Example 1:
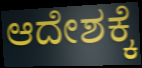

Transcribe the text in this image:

ಆದೇಶಕ್ಕೆ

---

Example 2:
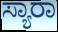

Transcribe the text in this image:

ಸ್ಯಾರಾ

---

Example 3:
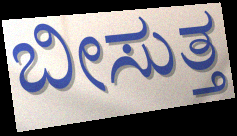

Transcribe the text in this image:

ಬೀಸುತ್ತ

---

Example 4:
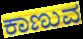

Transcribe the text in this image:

ಕಾಣುವ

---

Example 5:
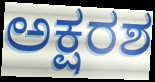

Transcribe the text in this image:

ಅಕ್ಷರಶ